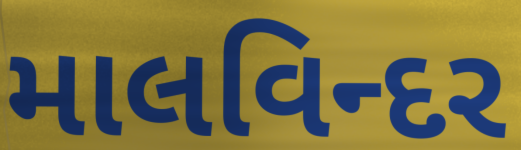
માલવિન્દર